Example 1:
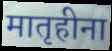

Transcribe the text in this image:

मातृहीना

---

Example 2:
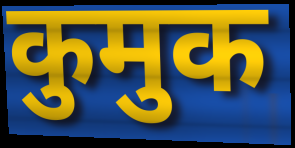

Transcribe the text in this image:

कुमुक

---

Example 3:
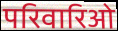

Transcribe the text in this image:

परिवारिओ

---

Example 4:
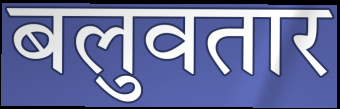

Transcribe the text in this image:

बलुवतार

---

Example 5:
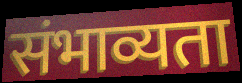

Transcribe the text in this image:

संभाव्यता